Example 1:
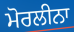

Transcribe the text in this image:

ਮੋਰਲੀਨਾ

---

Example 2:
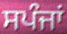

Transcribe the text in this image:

ਸਪੰਜਾਂ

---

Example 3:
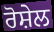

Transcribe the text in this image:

ਰੋਸ਼ੇਲ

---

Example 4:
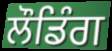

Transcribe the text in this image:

ਲੌਡਿੰਗ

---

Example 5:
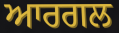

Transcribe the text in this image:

ਆਰਗਲ